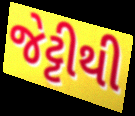
જેટ્ટીથી